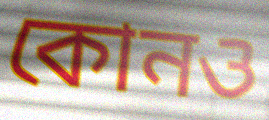
কোনও